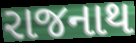
રાજનાથ